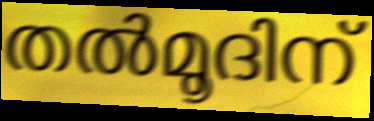
തൽമൂദിന്